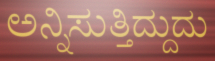
ಅನ್ನಿಸುತ್ತಿದ್ದುದು